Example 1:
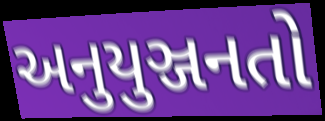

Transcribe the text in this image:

અનુયુઞ્જનતો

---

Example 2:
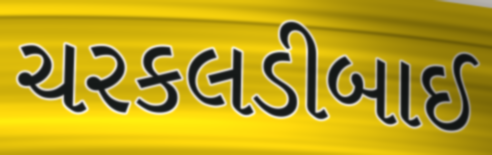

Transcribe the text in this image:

ચરકલડીબાઈ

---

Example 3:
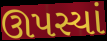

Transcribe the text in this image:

ઊપસ્યાં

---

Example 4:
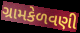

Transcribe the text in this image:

ગ્રામકેળવણી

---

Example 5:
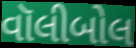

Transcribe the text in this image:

વૉલીબોલ